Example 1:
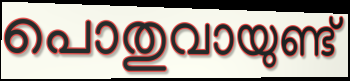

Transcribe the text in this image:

പൊതുവായുണ്ട്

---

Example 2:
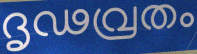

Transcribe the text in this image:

ദൃഢവ്രതം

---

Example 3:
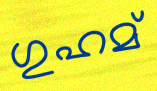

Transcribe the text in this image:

ഗുഹമ്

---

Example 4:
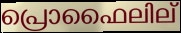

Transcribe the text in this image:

പ്രൊഫൈലില്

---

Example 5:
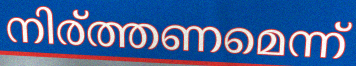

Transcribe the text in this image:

നിര്ത്തണമെന്ന്